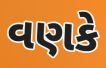
વણકે